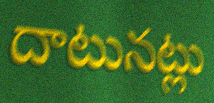
దాటునట్లు